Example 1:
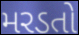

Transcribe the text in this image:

મરડતો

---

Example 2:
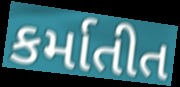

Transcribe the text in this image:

કર્માતીત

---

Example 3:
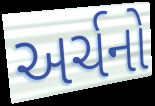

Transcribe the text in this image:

અર્ચનો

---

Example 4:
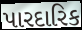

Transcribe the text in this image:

પારદારિક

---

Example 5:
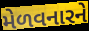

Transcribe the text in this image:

મેળવનારને